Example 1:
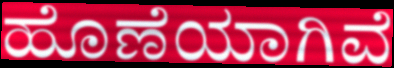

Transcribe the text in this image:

ಹೊಣೆಯಾಗಿವೆ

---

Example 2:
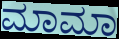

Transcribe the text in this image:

ಮಾಮಾ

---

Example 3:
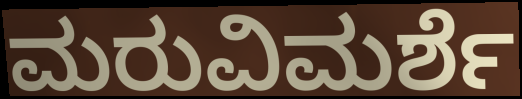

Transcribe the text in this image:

ಮರುವಿಮರ್ಶೆ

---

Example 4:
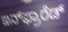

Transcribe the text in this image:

ಇನ್‌ಫ್ರಾರೆಡ್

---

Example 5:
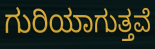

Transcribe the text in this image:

ಗುರಿಯಾಗುತ್ತವೆ